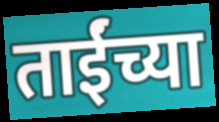
ताईंच्या